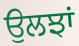
ਉਲਝਾਂ